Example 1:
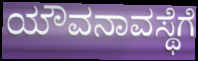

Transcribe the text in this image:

ಯೌವನಾವಸ್ಥೆಗೆ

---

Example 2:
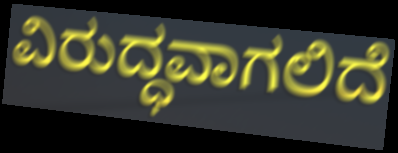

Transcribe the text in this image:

ವಿರುದ್ಧವಾಗಲಿದೆ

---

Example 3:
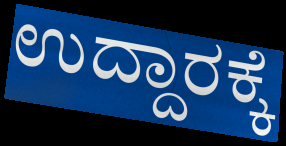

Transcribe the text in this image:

ಉದ್ದಾರಕ್ಕೆ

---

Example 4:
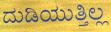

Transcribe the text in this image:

ದುಡಿಯುತ್ತಿಲ್ಲ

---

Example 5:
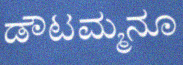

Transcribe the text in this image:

ಡೌಟಮ್ಮನೂ